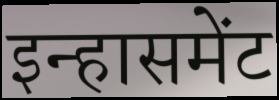
इन्हासमेंट